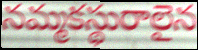
నమ్మకస్థురాలైన